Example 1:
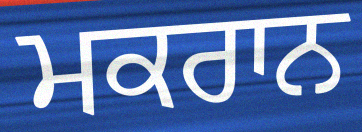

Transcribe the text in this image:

ਮਕਰਾਨ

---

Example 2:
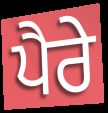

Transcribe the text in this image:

ਪੈਰੇ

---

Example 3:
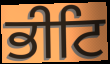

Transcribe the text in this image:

ਭੀਟਿ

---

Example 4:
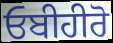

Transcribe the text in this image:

ਓਬੀਹੀਰੋ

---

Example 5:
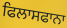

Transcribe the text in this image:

ਫਿਲਾਸਫਾਨਾ